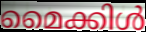
മൈക്കിൾ